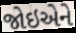
જોઇએને